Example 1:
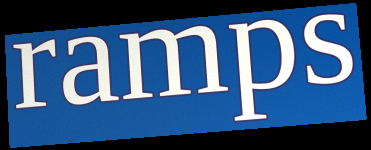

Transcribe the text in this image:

ramps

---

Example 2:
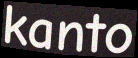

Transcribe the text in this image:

kanto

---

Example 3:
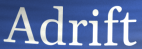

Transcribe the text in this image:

Adrift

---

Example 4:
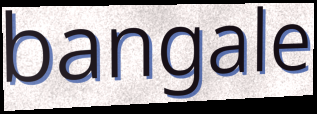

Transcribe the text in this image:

bangale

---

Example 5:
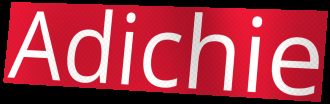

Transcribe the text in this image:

Adichie